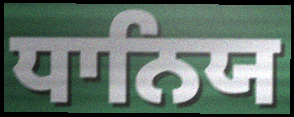
ਧਾਨਿਯ